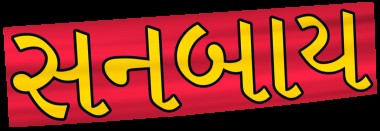
સનબાય